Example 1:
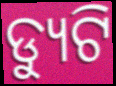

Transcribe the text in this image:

ଡ୍ୟୁଟି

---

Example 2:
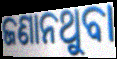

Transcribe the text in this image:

ଜଣାନଥୁବା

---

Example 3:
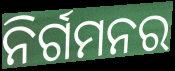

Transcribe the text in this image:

ନିର୍ଗମନର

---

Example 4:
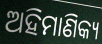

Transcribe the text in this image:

ଅହିମାଣିକ୍ୟ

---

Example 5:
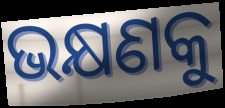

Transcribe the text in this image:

ଭକ୍ଷଣକୁ